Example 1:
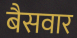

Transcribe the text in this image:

बैसवार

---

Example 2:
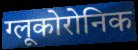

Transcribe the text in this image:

ग्लूकोरोनिक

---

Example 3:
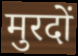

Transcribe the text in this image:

मुरदों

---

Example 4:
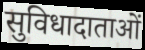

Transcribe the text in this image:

सुविधादाताओं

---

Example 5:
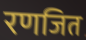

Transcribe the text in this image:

रणजित